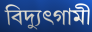
বিদ্যুৎগামী